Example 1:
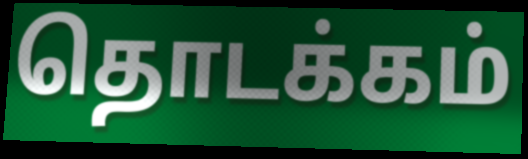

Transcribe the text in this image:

தொடக்கம்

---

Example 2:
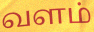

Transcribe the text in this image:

வளம்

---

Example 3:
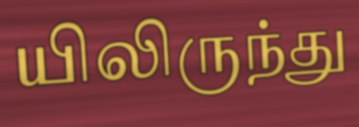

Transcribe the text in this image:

யிலிருந்து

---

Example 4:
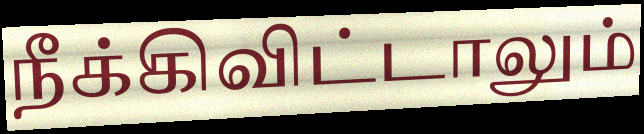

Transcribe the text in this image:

நீக்கிவிட்டாலும்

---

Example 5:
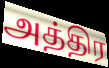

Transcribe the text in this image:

அத்திர